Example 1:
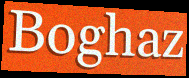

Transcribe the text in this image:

Boghaz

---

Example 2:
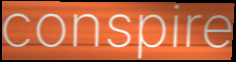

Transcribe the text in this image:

conspire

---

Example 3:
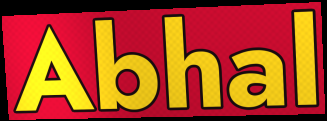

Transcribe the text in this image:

Abhal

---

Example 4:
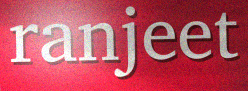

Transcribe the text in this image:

ranjeet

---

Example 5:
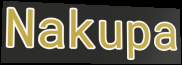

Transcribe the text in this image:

Nakupa